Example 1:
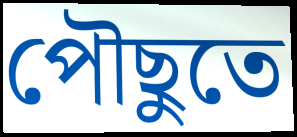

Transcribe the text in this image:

পৌছুতে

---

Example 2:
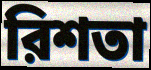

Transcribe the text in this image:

রিশতা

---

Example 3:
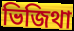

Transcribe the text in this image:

ভিজিথা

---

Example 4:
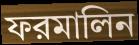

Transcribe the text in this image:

ফরমালিন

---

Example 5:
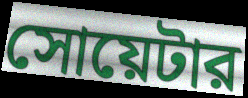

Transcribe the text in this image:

সোয়েটার